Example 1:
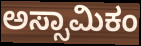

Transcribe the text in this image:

ಅಸ್ಸಾಮಿಕಂ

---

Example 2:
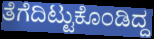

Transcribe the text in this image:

ತೆಗೆದಿಟ್ಟುಕೊಂಡಿದ್ದ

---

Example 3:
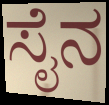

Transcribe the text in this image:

ಸೈನ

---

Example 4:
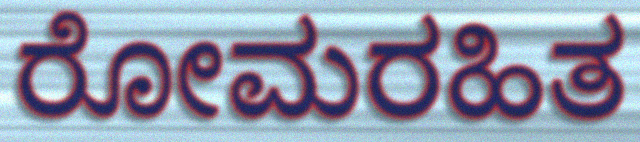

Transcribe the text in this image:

ರೋಮರಹಿತ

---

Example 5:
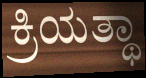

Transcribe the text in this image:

ಕ್ರಿಯತ್ಥಾ